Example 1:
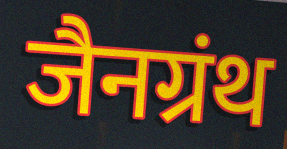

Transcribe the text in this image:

जैनग्रंथ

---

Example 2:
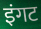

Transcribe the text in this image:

इंगट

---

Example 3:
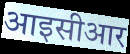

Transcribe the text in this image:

आइसीआर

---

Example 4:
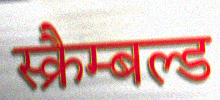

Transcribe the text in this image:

स्क्रैम्बल्ड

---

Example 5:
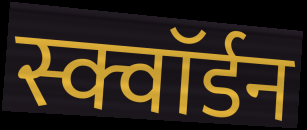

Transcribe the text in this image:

स्क्वॉर्डन